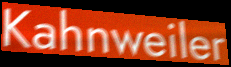
Kahnweiler